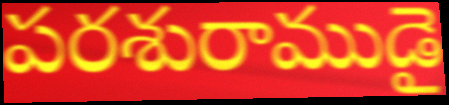
పరశురాముడై